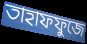
তাহাফফুজে